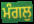
ਮੰਗਲੁ